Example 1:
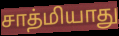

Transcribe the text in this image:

சாத்மியாது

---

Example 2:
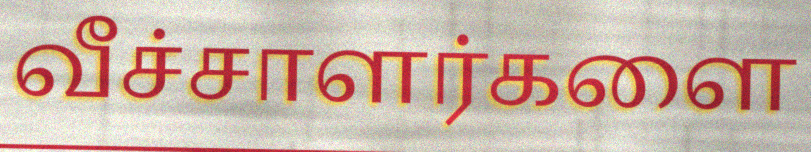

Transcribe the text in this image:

வீச்சாளர்களை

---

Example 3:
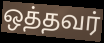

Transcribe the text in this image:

ஒத்தவர்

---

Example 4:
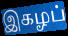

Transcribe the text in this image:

இகழப்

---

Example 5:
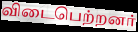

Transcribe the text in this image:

விடைபெற்றனர்